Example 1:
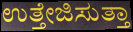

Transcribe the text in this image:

ಉತ್ತೇಜಿಸುತ್ತಾ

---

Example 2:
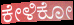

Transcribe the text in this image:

ಕೇಳಿಕೋ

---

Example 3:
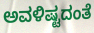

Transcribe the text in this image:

ಅವಳಿಷ್ಟದಂತೆ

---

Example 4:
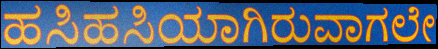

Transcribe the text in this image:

ಹಸಿಹಸಿಯಾಗಿರುವಾಗಲೇ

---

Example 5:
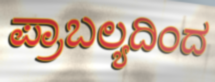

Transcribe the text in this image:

ಪ್ರಾಬಲ್ಯದಿಂದ